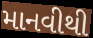
માનવીથી